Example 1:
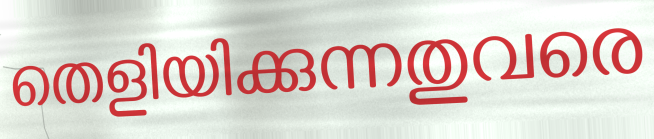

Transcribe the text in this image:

തെളിയിക്കുന്നതുവരെ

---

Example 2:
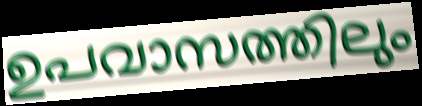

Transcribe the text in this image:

ഉപവാസത്തിലും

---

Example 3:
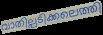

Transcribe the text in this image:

വാതില്പടിക്കലെത്തി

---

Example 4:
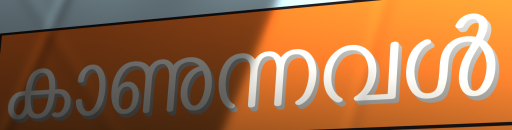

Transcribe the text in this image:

കാണുന്നവൾ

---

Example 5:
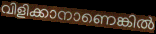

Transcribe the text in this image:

വിളിക്കാനാണെങ്കിൽ